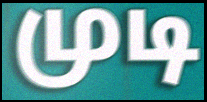
முடி